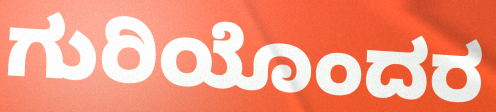
ಗುರಿಯೊಂದರ